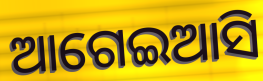
ଆଗେଇଆସି